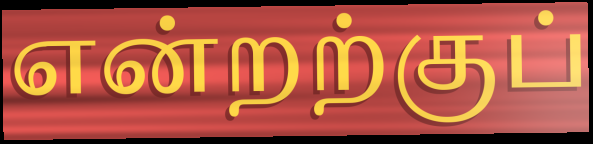
என்றற்குப்